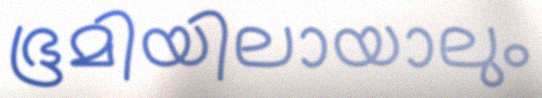
ഭൂമിയിലായാലും